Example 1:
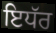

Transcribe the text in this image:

ਇਧੱਰ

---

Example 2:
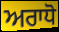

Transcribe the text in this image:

ਅਰਾਧੋ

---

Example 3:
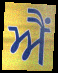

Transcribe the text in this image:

ਐਂ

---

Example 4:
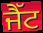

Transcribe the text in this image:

ਜੈੱਟ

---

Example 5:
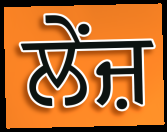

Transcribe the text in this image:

ਲੇਂਜ਼